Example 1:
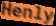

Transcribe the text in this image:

Henly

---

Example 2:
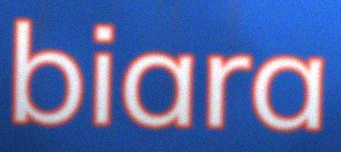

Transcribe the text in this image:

biara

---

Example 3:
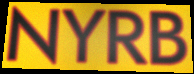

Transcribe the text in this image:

NYRB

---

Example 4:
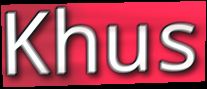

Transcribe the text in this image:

Khus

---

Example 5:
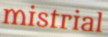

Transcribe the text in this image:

mistrial